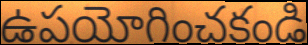
ఉపయోగించకండి